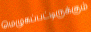
மெழுகப்பட்டிருக்கும்